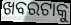
ଖବରଟାକୁ